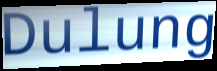
Dulung